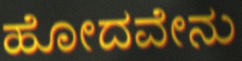
ಹೋದವೇನು